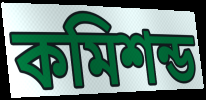
কমিশন্ড